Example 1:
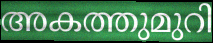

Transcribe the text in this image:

അകത്തുമുറി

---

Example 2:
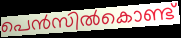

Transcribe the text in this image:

പെൻസിൽകൊണ്ട്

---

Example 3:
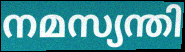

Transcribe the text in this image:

നമസ്യന്തി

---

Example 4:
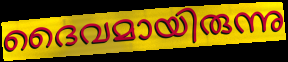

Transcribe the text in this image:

ദൈവമായിരുന്നു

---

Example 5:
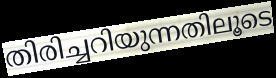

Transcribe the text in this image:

തിരിച്ചറിയുന്നതിലൂടെ